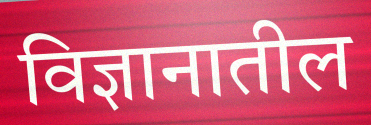
विज्ञानातील